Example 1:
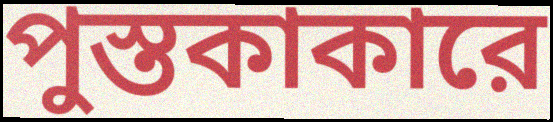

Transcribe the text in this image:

পুস্তকাকারে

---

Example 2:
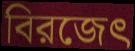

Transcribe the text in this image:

বিরজেৎ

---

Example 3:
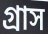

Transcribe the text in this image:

গ্রাস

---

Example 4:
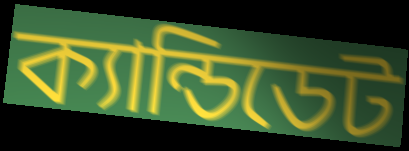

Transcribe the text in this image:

ক্যান্ডিডেট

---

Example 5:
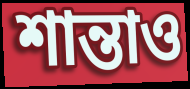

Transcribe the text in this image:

শান্তাও